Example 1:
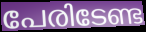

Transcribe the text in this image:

പേരിടേണ്ട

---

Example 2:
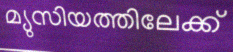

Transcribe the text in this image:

മ്യുസിയത്തിലേക്ക്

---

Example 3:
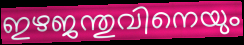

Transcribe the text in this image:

ഇഴജന്തുവിനെയും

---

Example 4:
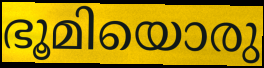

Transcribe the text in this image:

ഭൂമിയൊരു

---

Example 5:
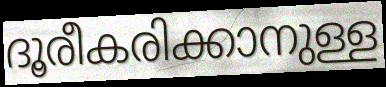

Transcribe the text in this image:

ദൂരീകരിക്കാനുള്ള